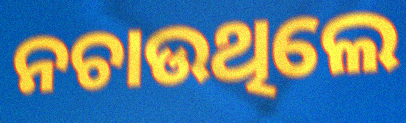
ନଚାଉଥିଲେ